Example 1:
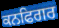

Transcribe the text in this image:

ਕਨਫਿਗਰ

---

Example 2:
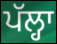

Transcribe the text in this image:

ਪੱਲ੍ਹਾ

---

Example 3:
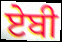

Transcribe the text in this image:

ਏਬੀ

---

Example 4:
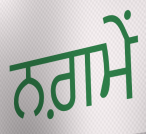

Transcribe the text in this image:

ਨਗ਼ਮੇਂ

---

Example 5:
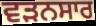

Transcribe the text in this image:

ਵੜਨਸਾਰ